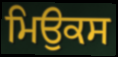
ਮਿਉਕਸ